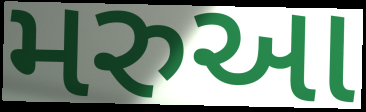
મરુઆ